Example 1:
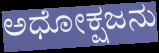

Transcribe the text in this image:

ಅಧೋಕ್ಷಜನು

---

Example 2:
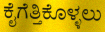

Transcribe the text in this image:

ಕೈಗೆತ್ತಿಕೊಳ್ಳಲು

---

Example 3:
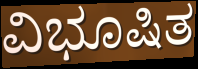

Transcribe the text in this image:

ವಿಭೂಷಿತ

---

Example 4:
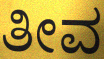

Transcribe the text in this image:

ತೀವ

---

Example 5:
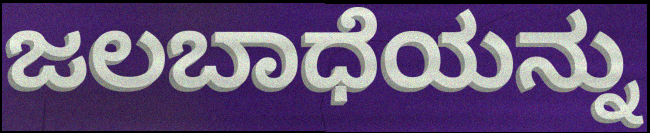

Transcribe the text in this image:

ಜಲಬಾಧೆಯನ್ನು